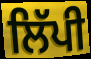
ਲਿੱਪੀ